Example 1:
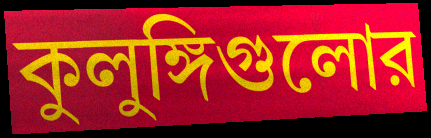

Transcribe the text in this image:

কুলুঙ্গিগুলোর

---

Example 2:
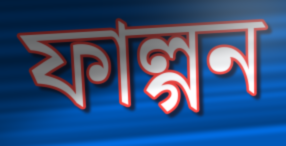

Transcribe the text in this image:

ফাল্গন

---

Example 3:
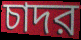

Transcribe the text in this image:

চাদর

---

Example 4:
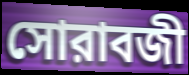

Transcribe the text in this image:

সোরাবজী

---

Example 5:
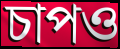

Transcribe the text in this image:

চাপও